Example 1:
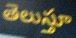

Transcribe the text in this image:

తెలుస్తూ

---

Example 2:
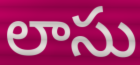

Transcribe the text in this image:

లాసు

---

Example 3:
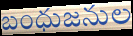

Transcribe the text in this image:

బంధుజనుల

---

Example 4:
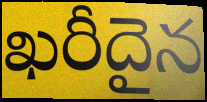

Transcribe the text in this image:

ఖరీదైన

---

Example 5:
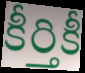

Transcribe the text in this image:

కీర్తికీ